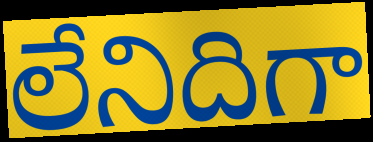
లేనిదిగా